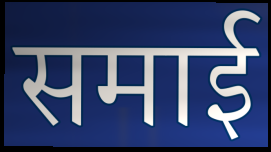
समाई